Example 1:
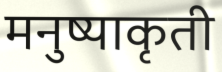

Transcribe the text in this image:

मनुष्याकृती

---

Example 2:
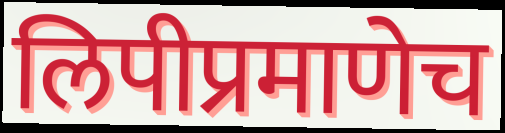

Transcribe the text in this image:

लिपीप्रमाणेच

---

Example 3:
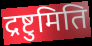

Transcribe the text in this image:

द्रष्टुमिति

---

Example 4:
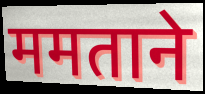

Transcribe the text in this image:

ममताने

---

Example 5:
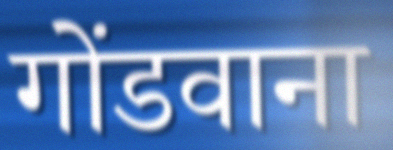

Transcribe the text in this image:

गोंडवाना